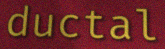
ductal